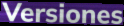
Versiones